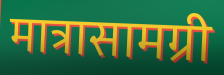
मात्रासामग्री